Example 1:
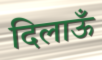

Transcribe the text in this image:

दिलाऊँ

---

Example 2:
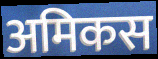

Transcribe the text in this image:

अमिकस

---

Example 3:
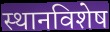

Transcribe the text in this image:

स्थानविशेष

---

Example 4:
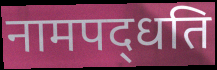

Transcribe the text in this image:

नामपद्धति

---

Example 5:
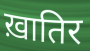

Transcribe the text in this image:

ख़ातिर